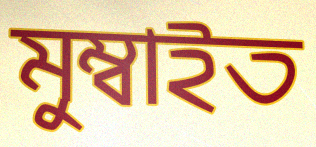
মুম্বাইত